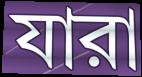
যারা